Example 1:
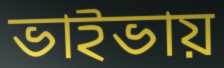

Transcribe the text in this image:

ভাইভায়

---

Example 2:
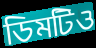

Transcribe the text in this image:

ডিমটিও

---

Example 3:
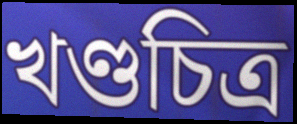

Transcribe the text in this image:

খণ্ডচিত্র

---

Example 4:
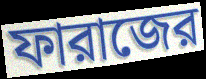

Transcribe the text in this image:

ফারাজের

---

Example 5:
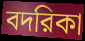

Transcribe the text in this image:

বদরিকা